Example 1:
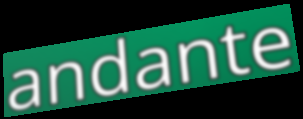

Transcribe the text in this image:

andante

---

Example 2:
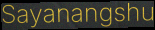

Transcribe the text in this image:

Sayanangshu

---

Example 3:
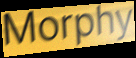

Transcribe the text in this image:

Morphy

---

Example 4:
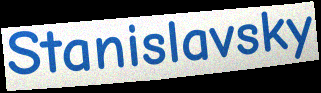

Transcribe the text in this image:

Stanislavsky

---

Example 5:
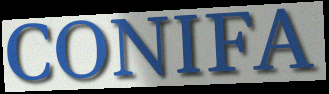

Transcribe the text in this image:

CONIFA